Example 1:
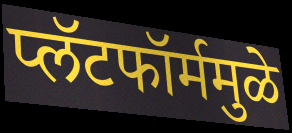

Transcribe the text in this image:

प्लॅटफॉर्ममुळे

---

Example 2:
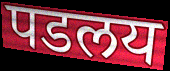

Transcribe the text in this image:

पडलय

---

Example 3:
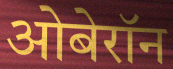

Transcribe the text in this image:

ओबेरॉन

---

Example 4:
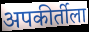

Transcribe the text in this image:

अपकीर्तीला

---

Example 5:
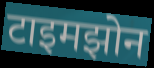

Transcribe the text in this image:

टाइमझोन